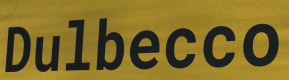
Dulbecco